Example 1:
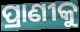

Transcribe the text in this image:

ପ୍ରାଣୀକୁ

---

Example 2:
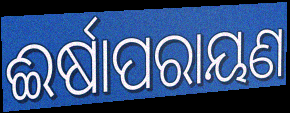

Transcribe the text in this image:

ଈର୍ଷାପରାୟଣ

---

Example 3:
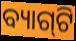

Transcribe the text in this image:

ବ୍ୟାଗ୍‌ଟି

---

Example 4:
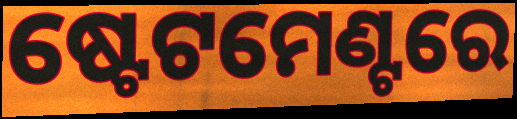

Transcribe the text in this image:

ଷ୍ଟେଟମେଣ୍ଟରେ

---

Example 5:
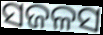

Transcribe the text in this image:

ସଜଳସ